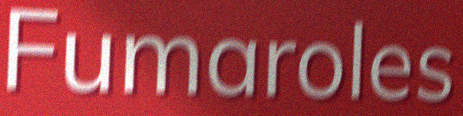
Fumaroles